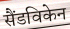
सैंडविकेन